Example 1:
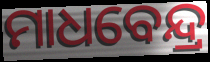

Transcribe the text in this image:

ମାଧବେନ୍ଦ୍ର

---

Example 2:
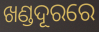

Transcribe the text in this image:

ଖଣ୍ଡଦୂରରେ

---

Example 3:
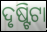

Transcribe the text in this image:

ଦୃଷ୍ଟିଟା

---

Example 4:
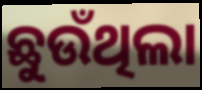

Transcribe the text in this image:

ଛୁଉଁଥିଲା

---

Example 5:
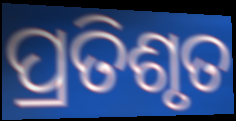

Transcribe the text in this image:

ପ୍ରତିଶୃତ